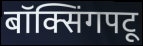
बॉक्सिंगपटू